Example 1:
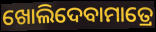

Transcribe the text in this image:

ଖୋଲିଦେବାମାତ୍ରେ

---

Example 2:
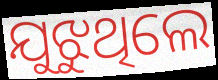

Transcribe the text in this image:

ଯୁଝୁଥିଲେ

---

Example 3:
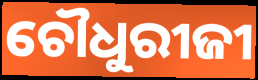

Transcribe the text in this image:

ଚୌଧୁରୀଜୀ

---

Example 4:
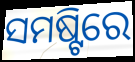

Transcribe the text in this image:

ସମଷ୍ଟିରେ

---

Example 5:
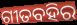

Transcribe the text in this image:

ଗୀତବହିର